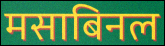
मसाबिनल